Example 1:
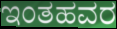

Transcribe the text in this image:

ಇಂತಹವರ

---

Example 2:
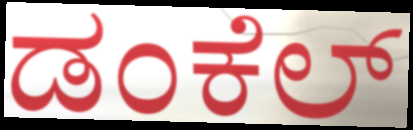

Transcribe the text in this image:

ಡಂಕೆಲ್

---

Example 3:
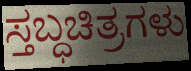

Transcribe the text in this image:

ಸ್ತಬ್ಧಚಿತ್ರಗಳು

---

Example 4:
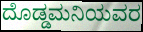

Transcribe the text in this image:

ದೊಡ್ಡಮನಿಯವರ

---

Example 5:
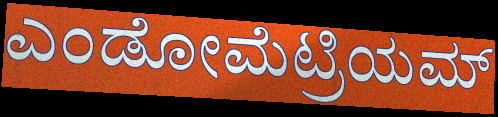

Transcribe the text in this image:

ಎಂಡೋಮೆಟ್ರಿಯಮ್